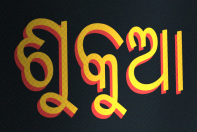
ଶୁକୁଆ